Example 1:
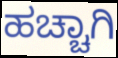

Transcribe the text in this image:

ಹಚ್ಚಾಗಿ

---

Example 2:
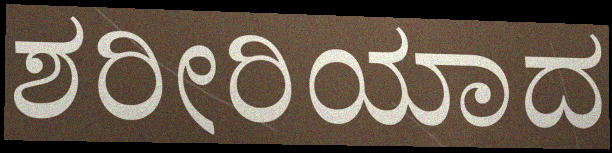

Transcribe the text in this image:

ಶರೀರಿಯಾದ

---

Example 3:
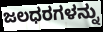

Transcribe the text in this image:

ಜಲಧರಗಳನ್ನು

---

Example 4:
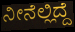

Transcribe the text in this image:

ನೀನೆಲ್ಲಿದ್ದೆ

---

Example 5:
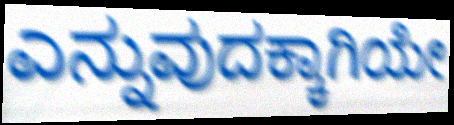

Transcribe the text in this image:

ಎನ್ನುವುದಕ್ಕಾಗಿಯೇ